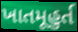
ખાતમૂહુર્ત